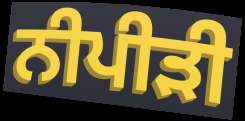
ਨੀਪੀੜੀ